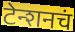
टेन्शनचं